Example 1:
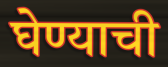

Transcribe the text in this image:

घेण्याची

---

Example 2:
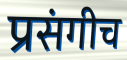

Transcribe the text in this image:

प्रसंगीच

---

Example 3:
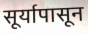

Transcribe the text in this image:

सूर्यापासून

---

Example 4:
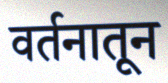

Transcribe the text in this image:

वर्तनातून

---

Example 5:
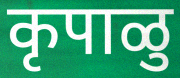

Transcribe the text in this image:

कृपाळु